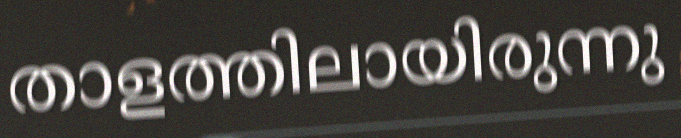
താളത്തിലായിരുന്നു